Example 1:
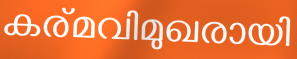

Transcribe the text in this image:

കര്മവിമുഖരായി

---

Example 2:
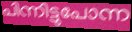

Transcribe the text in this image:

പിന്നിട്ടുപോന്ന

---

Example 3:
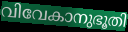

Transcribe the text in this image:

വിവേകാനുഭൂതി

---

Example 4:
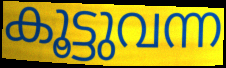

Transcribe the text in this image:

കൂട്ടുവന്ന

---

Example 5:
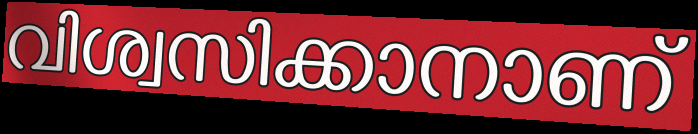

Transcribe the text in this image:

വിശ്വസിക്കാനാണ്